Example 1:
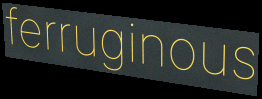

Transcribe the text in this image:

ferruginous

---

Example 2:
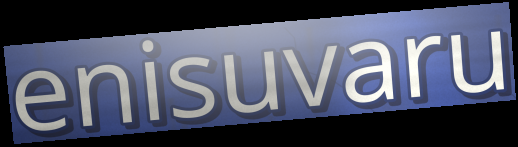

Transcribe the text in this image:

enisuvaru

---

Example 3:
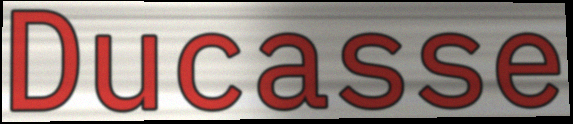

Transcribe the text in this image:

Ducasse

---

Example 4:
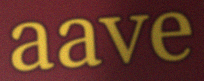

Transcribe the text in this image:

aave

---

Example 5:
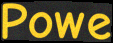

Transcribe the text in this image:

Powe